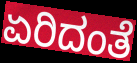
ಏರಿದಂತೆ